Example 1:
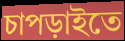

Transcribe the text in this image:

চাপড়াইতে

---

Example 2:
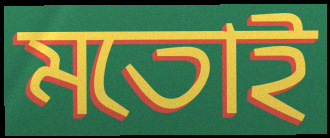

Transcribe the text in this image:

মতোই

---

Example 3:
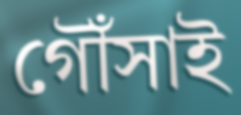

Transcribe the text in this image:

গৌঁসাই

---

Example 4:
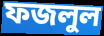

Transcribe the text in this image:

ফজলুল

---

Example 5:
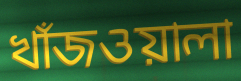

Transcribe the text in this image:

খাঁজওয়ালা